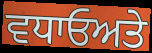
ਵਧਾਓਅਤੇ